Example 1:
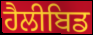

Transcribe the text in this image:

ਹੈਲੀਬਿਡ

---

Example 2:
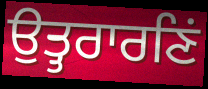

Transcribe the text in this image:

ਉਤ੍ਤਰਾਰਣਿਂ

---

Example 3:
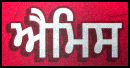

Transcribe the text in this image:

ਐਮਿਸ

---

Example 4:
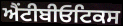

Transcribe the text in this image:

ਐਂਟੀਬੀਓਟਿਕਸ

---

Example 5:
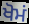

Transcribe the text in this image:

ਖੋਮਂ